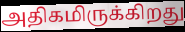
அதிகமிருக்கிறது